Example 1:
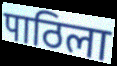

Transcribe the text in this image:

पाठिला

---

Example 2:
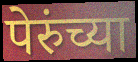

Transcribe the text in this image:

पेरुंच्या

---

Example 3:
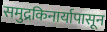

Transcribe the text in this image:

समुद्रकिनार्यापासून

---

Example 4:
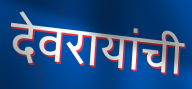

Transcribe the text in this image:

देवरायांची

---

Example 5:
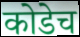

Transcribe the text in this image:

कोडेच